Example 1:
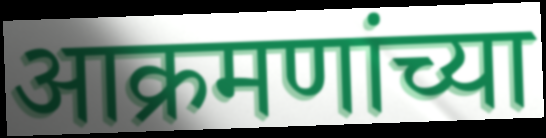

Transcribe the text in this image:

आक्रमणांच्या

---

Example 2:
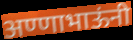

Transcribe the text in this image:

अण्णाभाऊंनी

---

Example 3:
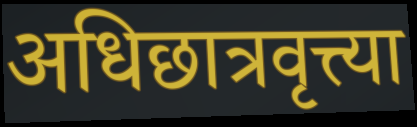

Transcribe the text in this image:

अधिछात्रवृत्त्या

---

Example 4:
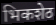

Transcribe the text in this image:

भिकशेठ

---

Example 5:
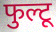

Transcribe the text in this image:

फुल्टू